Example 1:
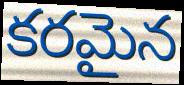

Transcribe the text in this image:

కరమైన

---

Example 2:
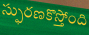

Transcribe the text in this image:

స్ఫురణకొస్తోంది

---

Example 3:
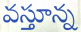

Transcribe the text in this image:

వస్తూన్న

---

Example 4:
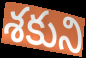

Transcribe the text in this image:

శకుని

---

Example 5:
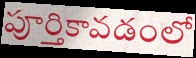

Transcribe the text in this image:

పూర్తికావడంలో